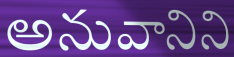
అనువానిని